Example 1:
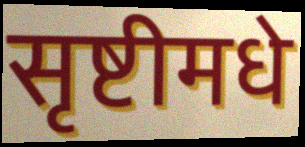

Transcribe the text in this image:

सृष्टीमधे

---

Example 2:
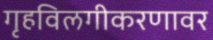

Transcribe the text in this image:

गृहविलगीकरणावर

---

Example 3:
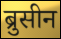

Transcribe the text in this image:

ब्रुसीन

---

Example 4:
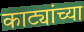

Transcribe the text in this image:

काट्यांच्या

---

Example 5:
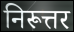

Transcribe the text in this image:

निरूत्तर